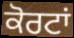
ਕੋਰਟਾਂ